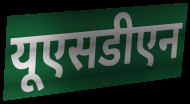
यूएसडीएन